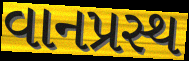
વાનપ્રસ્થ